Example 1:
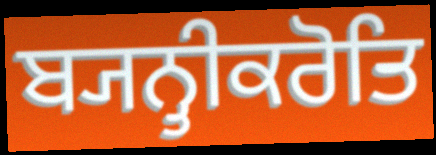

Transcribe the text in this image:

ਬ੍ਯਨ੍ਤੀਕਰੋਤਿ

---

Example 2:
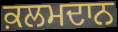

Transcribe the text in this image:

ਕ਼ਲਮਦਾਨ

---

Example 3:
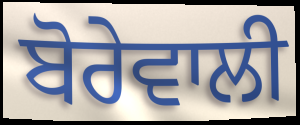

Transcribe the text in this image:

ਬੋਰੇਵਾਲੀ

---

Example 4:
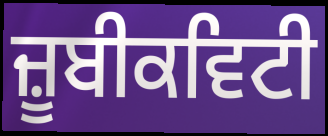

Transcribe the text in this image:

ਜ਼ੂਬੀਕਵਿਟੀ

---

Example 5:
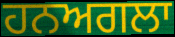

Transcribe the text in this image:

ਹਨਅਗਲਾ